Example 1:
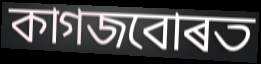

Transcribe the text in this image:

কাগজবোৰত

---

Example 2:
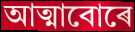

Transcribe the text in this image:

আত্মাবোৰে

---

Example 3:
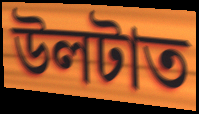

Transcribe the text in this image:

উলটাত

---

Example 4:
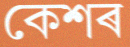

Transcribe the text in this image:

কেশৰ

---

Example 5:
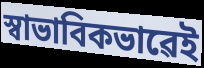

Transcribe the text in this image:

স্বাভাবিকভাৱেই